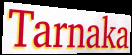
Tarnaka